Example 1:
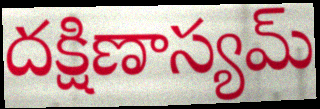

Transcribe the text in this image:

దక్షిణాస్యమ్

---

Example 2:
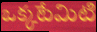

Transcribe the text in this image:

ఒక్కటేమిటి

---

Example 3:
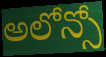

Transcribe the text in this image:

అలోన్సో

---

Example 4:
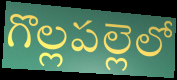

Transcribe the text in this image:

గొల్లపల్లెలో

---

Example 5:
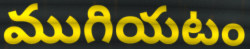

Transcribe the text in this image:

ముగియటం